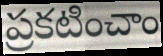
ప్రకటించాం